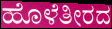
ಹೊಳೆತೀರದ